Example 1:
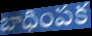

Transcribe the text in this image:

బాధింపక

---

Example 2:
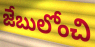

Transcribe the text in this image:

జేబులోంచి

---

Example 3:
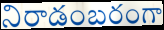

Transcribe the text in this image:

నిరాడంబరంగా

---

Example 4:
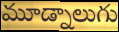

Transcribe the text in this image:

మూడ్నాలుగు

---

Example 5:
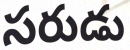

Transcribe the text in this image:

సరుడు